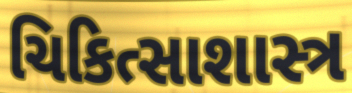
ચિકિત્સાશાસ્ત્ર